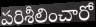
పరిశీలించారో